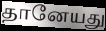
தானேயது